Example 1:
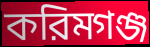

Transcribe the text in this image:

করিমগঞ্জ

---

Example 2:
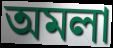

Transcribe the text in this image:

অমলা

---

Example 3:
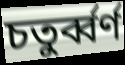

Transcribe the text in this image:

চতুর্ব্বর্ণ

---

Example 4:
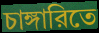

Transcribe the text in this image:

চাঙ্গারিতে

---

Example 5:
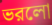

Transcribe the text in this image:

ভরলো